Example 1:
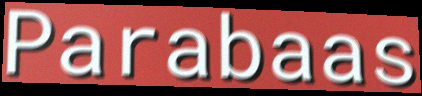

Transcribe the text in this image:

Parabaas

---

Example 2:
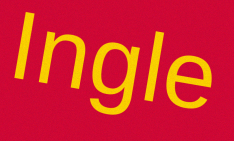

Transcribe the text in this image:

Ingle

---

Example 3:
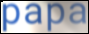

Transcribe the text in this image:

papa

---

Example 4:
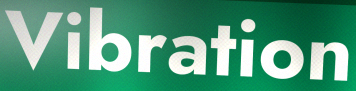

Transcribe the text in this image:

Vibration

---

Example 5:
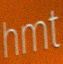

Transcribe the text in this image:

hmt